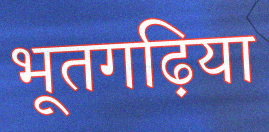
भूतगढ़िया